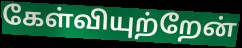
கேள்வியுற்றேன்